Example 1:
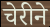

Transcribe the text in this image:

चेरीने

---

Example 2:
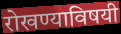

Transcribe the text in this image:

रोखण्याविषयी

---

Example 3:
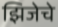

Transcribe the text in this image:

झिजेचे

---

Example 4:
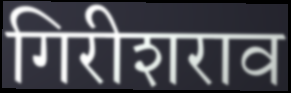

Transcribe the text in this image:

गिरीशराव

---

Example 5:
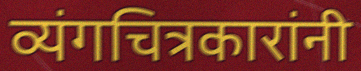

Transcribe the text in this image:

व्यंगचित्रकारांनी